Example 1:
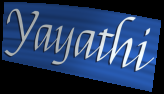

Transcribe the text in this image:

Yayathi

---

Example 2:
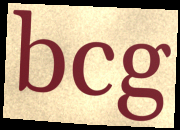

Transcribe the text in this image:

bcg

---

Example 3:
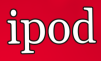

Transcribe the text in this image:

ipod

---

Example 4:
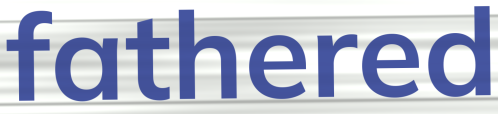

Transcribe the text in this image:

fathered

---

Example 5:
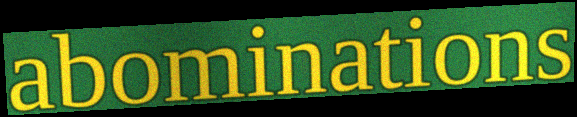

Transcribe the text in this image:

abominations